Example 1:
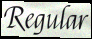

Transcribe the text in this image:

Regular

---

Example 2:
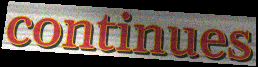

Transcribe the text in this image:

continues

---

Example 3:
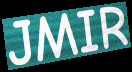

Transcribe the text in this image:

JMIR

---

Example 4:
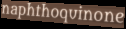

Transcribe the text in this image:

naphthoquinone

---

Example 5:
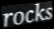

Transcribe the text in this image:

rocks